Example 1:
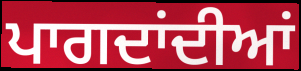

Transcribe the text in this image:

ਪਾਗਦਾਂਦੀਆਂ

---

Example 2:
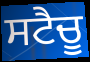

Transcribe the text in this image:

ਸਟੈਚੂ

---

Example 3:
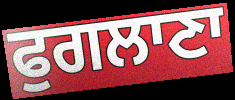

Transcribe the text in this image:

ਫੁਗਲਾਣਾ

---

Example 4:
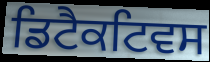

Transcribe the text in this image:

ਡਿਟੈਕਟਿਵਸ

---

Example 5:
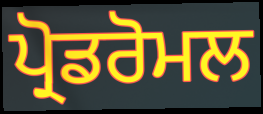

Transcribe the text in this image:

ਪ੍ਰੋਡਰੋਮਲ